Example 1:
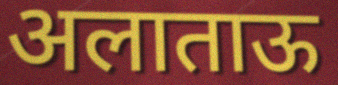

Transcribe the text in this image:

अलाताऊ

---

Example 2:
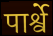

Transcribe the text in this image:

पार्श्वे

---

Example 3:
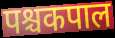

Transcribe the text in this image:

पश्चकपाल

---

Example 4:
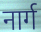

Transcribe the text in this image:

नार्ग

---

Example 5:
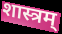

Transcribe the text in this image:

शास्त्रम्